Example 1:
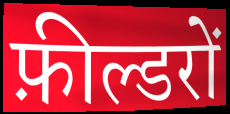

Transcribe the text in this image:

फ़ील्डरों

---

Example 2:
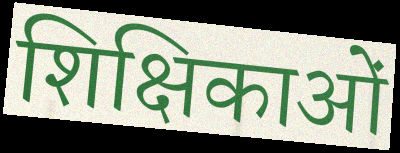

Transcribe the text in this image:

शिक्षिकाओं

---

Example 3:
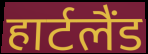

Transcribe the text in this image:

हार्टलैंड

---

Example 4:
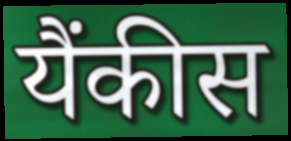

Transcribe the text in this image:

यैंकीस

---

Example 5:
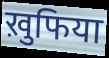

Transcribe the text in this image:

ख़ुफिया